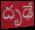
దృఢే